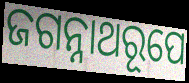
ଜଗନ୍ନାଥରୂପେ